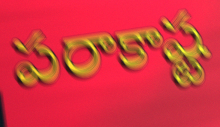
పరాకాష్ట